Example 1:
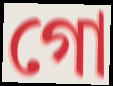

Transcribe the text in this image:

গো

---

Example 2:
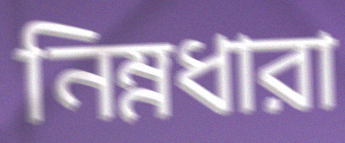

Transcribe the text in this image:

নিম্নধারা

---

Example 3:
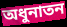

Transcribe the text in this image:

অধুনাতন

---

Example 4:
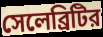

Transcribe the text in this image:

সেলেব্রিটির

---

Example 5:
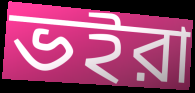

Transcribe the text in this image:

ভইরা